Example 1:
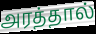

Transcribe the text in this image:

அரத்தால்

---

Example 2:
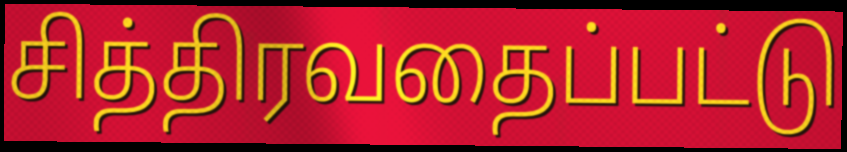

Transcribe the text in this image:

சித்திரவதைப்பட்டு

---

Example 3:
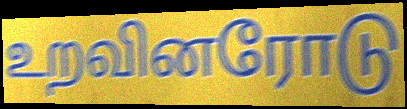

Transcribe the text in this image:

உறவினரோடு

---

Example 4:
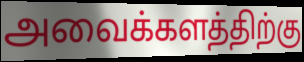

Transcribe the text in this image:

அவைக்களத்திற்கு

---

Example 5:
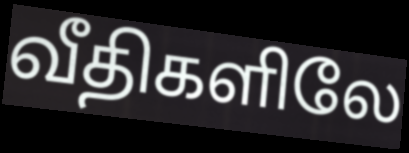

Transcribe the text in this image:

வீதிகளிலே